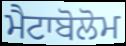
ਮੈਟਾਬੋਲੋਮ